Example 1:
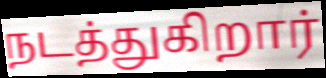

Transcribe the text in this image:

நடத்துகிறார்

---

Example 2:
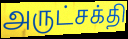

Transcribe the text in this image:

அருட்சக்தி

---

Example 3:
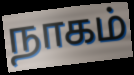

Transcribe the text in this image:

நாகம்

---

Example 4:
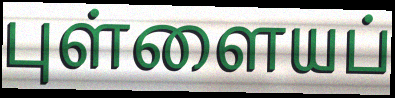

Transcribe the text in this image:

புள்ளையப்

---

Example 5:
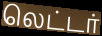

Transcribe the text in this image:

லெட்டர்